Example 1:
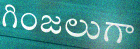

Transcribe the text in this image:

గింజలుగా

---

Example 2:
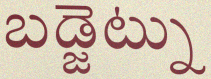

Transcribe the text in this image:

బడ్జెట్ను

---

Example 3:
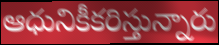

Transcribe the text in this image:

ఆధునికీకరిస్తున్నారు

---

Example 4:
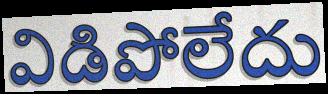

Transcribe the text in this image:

విడిపోలేదు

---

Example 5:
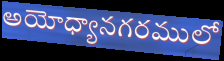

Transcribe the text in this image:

అయోధ్యానగరములో